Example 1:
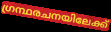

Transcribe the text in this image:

ഗ്രന്ഥരചനയിലേക്ക്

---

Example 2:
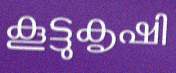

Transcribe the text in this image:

കൂട്ടുകൃഷി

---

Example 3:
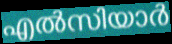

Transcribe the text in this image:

എൽസിയാർ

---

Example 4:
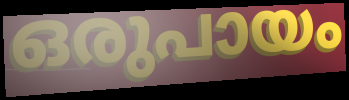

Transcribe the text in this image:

ഒരുപായം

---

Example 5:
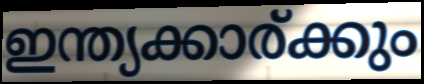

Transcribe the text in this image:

ഇന്ത്യക്കാര്ക്കും